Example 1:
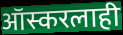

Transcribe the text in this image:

ऑस्करलाही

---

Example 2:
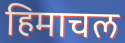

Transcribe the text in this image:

हिमाचल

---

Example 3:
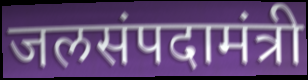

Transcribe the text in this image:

जलसंपदामंत्री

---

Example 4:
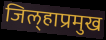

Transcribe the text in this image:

जिल्हाप्रमुख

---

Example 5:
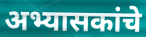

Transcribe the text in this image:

अभ्यासकांचे